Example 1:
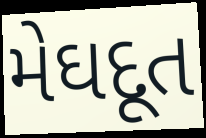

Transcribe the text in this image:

મેઘદૂત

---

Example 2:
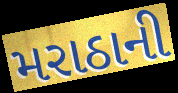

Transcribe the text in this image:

મરાઠાની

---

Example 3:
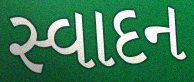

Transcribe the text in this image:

સ્વાદન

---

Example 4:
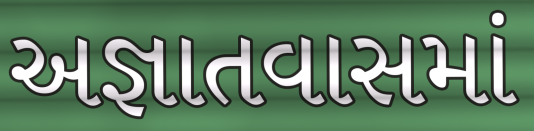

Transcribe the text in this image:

અજ્ઞાતવાસમાં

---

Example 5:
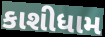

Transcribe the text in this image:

કાશીધામ